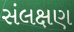
સંલક્ષણ